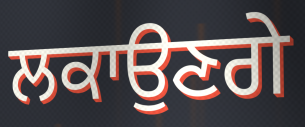
ਲਕਾਉਣਗੇ